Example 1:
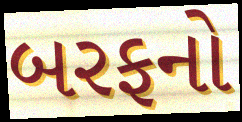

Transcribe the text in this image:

બરફનો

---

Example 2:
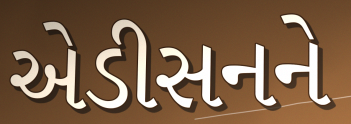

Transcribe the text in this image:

એડીસનને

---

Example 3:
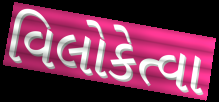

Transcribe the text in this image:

વિલોકેત્વા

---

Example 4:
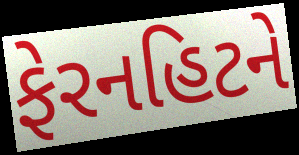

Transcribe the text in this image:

ફેરનહિટને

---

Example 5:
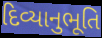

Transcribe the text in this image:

દિવ્યાનુભૂતિ